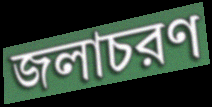
জলাচরণ